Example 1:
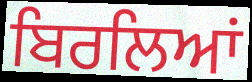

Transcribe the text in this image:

ਬਿਰਲਿਆਂ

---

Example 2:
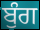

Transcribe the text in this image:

ਬੁੰਗ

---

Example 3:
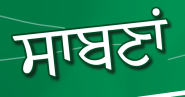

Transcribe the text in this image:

ਸਾਬਣਾਂ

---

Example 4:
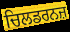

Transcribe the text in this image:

ਚਿਲਡਰਨਜ਼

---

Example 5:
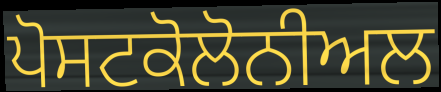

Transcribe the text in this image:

ਪੋਸਟਕੋਲੋਨੀਅਲ